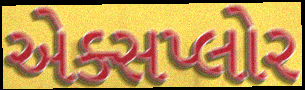
એક્સપ્લોર